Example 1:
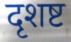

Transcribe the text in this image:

दृशष्ट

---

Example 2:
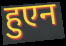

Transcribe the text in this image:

हुएन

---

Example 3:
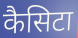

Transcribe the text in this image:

कैसिटा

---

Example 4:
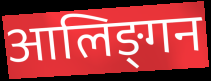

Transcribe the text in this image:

आलिङ्गन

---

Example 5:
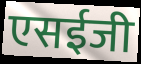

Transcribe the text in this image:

एसईजी